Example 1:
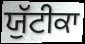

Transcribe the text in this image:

ਯੁੱਟੀਕਾ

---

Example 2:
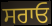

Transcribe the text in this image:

ਸਰਾਓ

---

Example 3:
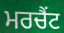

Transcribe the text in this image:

ਮਰਚੈਂਟ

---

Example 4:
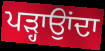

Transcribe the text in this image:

ਪੜ੍ਹਾਉਾਂਦਾ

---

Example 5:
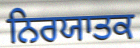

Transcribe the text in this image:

ਨਿਰਯਾਤਕ